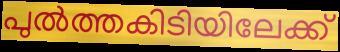
പുൽത്തകിടിയിലേക്ക്